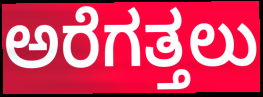
ಅರೆಗತ್ತಲು